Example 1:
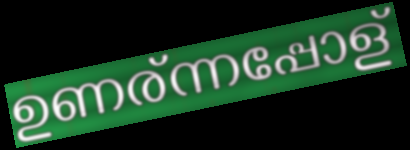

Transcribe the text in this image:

ഉണര്ന്നപ്പോള്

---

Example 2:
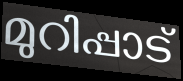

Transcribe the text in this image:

മുറിപ്പാട്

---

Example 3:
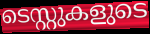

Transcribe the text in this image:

ടെസ്റ്റുകളുടെ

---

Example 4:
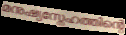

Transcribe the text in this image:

മനുഷ്യസ്നേഹത്തിന്റെ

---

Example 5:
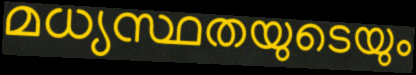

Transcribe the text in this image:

മധ്യസ്ഥതയുടെയും